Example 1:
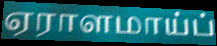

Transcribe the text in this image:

ஏராளமாய்ப்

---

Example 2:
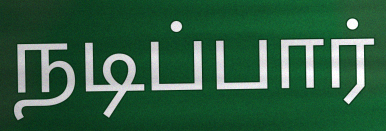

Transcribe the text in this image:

நடிப்பார்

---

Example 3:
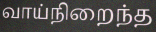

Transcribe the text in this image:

வாய்நிறைந்த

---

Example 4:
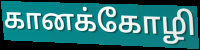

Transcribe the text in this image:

கானக்கோழி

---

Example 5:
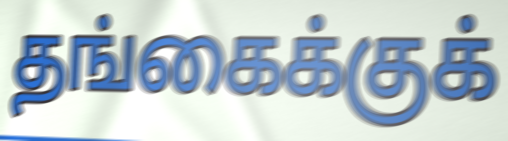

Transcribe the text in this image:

தங்கைக்குக்